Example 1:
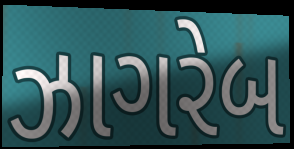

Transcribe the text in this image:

ઝાગરેબ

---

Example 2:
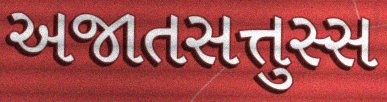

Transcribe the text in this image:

અજાતસત્તુસ્સ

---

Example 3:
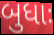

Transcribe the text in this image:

બુધાઃ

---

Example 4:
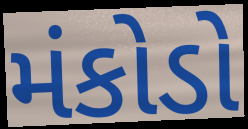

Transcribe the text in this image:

મંકોડો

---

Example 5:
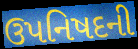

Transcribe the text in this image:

ઉપનિષદની